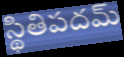
స్థితిపదమ్